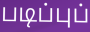
படிப்புப்